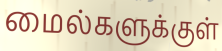
மைல்களுக்குள்